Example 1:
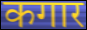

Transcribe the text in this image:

कगार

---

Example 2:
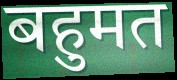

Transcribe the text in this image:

बहुमत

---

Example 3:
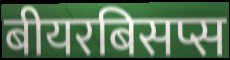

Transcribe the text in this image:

बीयरबिसप्स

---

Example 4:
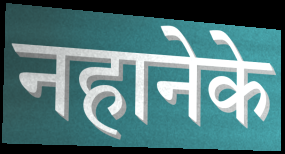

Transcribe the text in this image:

नहानेके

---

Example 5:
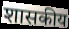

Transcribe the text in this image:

शासकीय